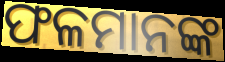
ଫଳମାନଙ୍କ